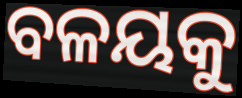
ବଳୟକୁ